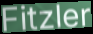
Fitzler